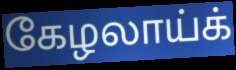
கேழலாய்க்